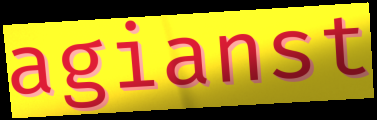
agianst